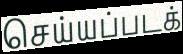
செய்யப்படக்